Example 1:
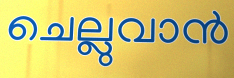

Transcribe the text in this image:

ചെല്ലുവാൻ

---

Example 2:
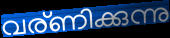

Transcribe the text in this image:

വര്ണിക്കുന്നു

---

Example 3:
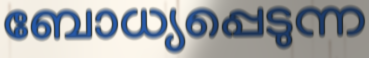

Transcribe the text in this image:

ബോധ്യപ്പെടുന്ന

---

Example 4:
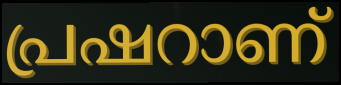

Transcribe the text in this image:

പ്രഷറാണ്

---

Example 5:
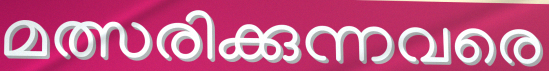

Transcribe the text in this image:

മത്സരിക്കുന്നവരെ